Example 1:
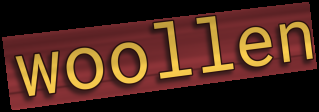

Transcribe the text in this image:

woollen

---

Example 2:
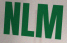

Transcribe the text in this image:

NLM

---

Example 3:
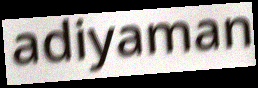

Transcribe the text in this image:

adiyaman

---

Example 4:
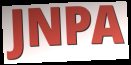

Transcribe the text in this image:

JNPA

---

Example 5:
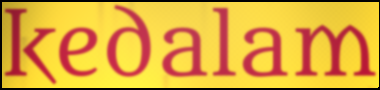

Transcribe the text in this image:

kedalam